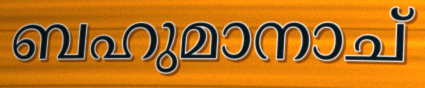
ബഹുമാനാച്